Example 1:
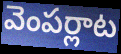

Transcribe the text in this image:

వెంపర్లాట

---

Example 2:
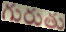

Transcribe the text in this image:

గురుతు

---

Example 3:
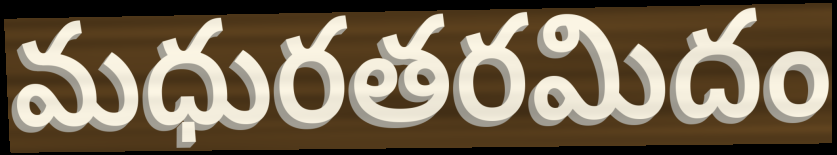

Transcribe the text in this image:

మధురతరమిదం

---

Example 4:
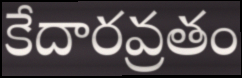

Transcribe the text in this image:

కేదారవ్రతం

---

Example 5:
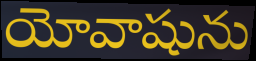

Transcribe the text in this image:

యోవాషును